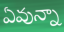
ఏవున్నా